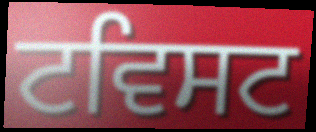
ਟਵਿਸਟ